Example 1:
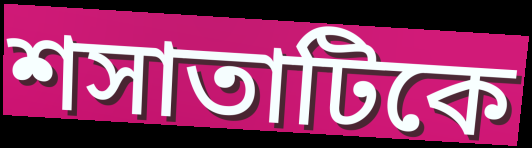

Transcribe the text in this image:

শসাতাটিকে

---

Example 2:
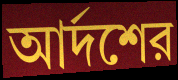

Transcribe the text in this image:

আর্দশের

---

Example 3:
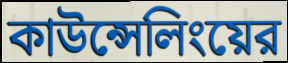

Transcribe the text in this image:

কাউন্সেলিংয়ের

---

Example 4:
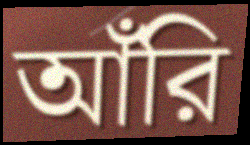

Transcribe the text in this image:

আঁরি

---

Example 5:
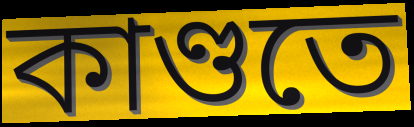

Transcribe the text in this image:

কাণ্ডতে